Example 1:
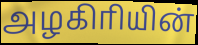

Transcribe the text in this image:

அழகிரியின்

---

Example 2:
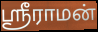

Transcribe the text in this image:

ஸ்ரீராமன்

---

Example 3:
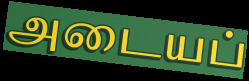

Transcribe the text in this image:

அடையப்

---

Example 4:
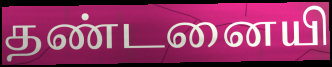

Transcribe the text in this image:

தண்டனையி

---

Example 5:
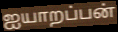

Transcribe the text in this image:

ஐயாறப்பன்